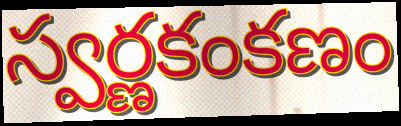
స్వర్ణకంకణం